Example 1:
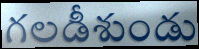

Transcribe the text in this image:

గలడీశుండు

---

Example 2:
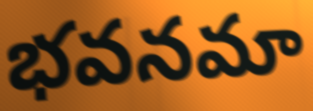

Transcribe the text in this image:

భవనమా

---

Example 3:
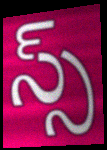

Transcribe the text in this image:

స్స్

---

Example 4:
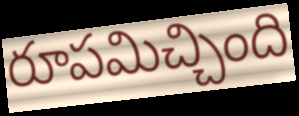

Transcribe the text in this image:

రూపమిచ్చింది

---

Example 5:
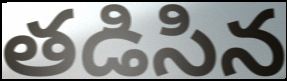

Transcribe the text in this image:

తడిసిన